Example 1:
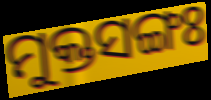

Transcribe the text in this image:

ମୁକ୍ତସଙ୍ଗଃ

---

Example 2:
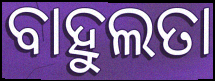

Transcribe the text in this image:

ବାହୁଲତା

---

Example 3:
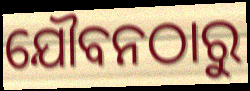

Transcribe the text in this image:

ଯୌବନଠାରୁ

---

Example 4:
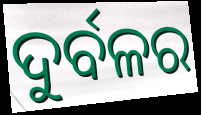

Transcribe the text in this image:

ଦୁର୍ବଳର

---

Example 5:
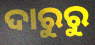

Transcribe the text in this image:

ଦାରୁରୁ